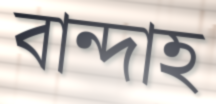
বান্দাহ